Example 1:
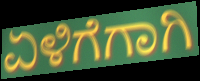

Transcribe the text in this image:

ಏಳಿಗೆಗಾಗಿ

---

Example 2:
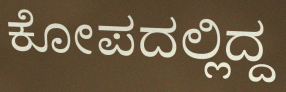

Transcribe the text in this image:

ಕೋಪದಲ್ಲಿದ್ದ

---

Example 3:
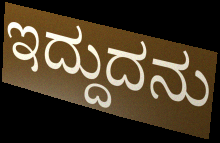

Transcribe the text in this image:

ಇದ್ದುದನು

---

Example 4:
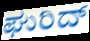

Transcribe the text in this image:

ಘುರಿದ್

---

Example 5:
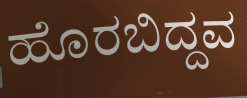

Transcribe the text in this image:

ಹೊರಬಿದ್ದವ